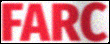
FARC